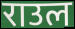
राउल